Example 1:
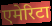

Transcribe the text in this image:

एमेरिटा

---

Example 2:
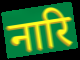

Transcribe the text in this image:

नारि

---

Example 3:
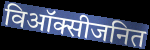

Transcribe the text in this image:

विऑक्सीजनित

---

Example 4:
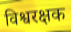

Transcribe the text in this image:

विश्वरक्षक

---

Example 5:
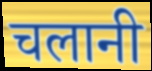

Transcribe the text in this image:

चलानी